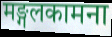
मङ्गलकामना